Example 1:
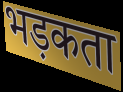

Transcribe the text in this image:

भड़कता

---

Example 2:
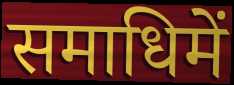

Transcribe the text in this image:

समाधिमें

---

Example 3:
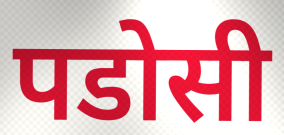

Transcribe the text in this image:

पडोसी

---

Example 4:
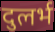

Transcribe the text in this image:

दुलर्भ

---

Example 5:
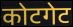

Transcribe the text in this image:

कोटगेट